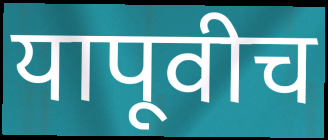
यापूवीच